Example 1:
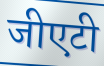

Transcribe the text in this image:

जीएटी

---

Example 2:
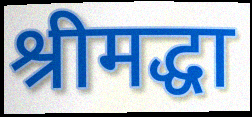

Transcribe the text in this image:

श्रीमद्धा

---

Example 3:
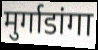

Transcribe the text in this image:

मुर्गाडांगा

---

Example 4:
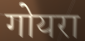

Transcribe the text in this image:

गोयरा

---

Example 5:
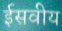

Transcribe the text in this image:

ईसवीय